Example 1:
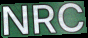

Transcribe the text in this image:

NRC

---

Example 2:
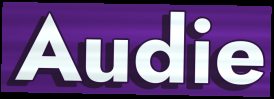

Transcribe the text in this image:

Audie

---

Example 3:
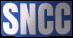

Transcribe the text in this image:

SNCC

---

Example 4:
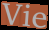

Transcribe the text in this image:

Vie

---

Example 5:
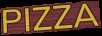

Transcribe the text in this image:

PIZZA